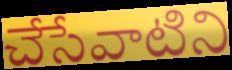
చేసేవాటిని